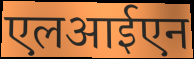
एलआईएन